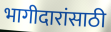
भागीदारांसाठी